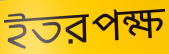
ইতরপক্ষ